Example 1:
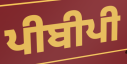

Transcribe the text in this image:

ਪੀਬੀਪੀ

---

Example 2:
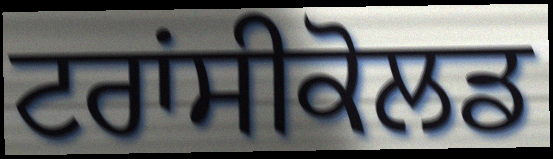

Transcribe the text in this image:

ਟਰਾਂਸੀਕੋਲਡ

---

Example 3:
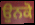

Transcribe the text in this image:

ਉਨਕੋ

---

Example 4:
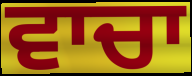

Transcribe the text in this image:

ਵਾਚਾ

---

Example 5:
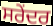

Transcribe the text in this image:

ਸਰੇਂਦਰ